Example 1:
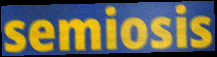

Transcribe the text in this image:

semiosis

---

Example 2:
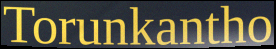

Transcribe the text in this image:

Torunkantho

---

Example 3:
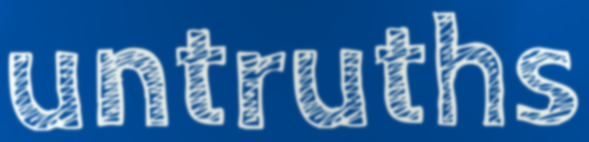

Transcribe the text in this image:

untruths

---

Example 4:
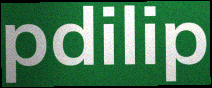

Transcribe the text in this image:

pdilip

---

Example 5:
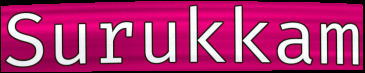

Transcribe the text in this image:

Surukkam